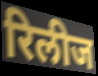
रिलीज